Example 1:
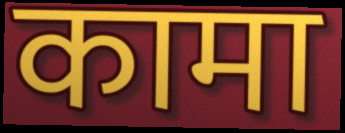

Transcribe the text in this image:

कामा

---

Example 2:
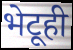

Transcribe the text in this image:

भेटूही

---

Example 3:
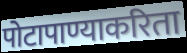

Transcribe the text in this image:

पोटापाण्याकरिता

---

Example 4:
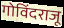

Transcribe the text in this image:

गोविंदराजू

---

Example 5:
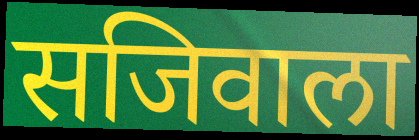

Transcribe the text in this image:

सजिवाला